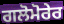
ਗਲੋਮੋਰੇਰ